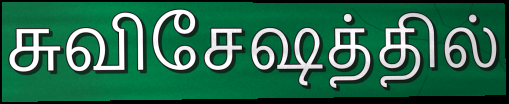
சுவிசேஷத்தில்